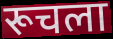
रूचला